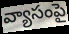
వ్యాసంపై